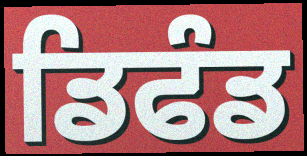
ਡਿਫੰਡ